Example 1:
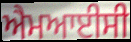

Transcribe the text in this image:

ਐਮਆਈਸੀ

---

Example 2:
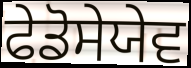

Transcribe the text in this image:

ਫੇਡੋਸੇਯੇਵ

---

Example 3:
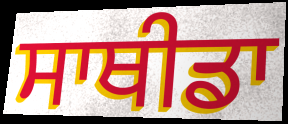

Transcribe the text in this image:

ਸਾਥੀਡਾ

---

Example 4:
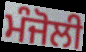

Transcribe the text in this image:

ਮੰਜੋਲੀ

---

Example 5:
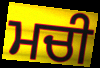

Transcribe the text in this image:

ਮਚੀ